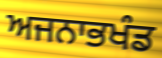
ਅਜਨਾਭਖੰਡ